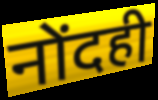
नोंदही